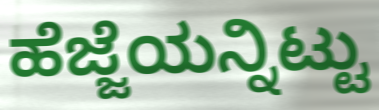
ಹೆಜ್ಜೆಯನ್ನಿಟ್ಟು